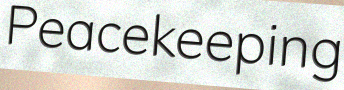
Peacekeeping